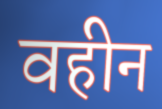
वहीन